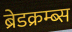
ब्रेडक्रम्ब्स